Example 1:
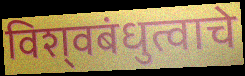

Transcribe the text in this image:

विश्वबंधुत्वाचे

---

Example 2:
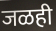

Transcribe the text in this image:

जळही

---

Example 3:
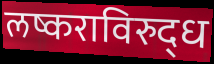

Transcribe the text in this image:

लष्कराविरुद्ध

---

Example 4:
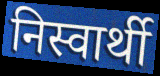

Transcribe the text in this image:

निस्वार्थी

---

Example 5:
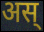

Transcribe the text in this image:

अस्